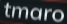
tmaro